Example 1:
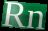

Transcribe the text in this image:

Rn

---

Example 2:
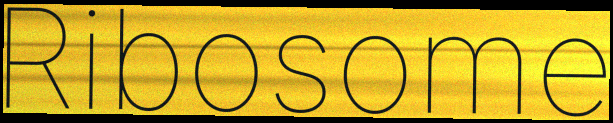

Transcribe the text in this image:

Ribosome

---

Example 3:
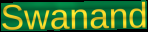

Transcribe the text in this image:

Swanand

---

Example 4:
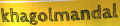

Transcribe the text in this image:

khagolmandal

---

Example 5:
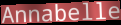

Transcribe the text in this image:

Annabelle